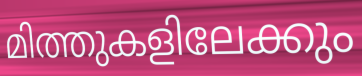
മിത്തുകളിലേക്കും